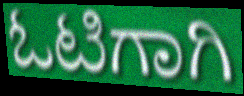
ಓಟಿಗಾಗಿ